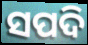
ସପଦି